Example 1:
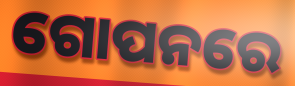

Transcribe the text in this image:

ଗୋପନରେ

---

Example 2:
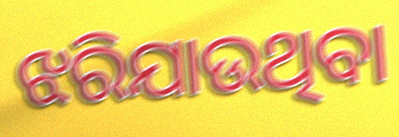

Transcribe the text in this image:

ଝରିଯାଉଥିବା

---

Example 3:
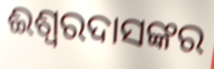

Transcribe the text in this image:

ଈଶ୍ଵରଦାସଙ୍କର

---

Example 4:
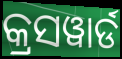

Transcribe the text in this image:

କ୍ରସୱାର୍ଡ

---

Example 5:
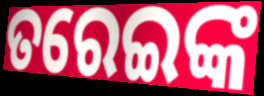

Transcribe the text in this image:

ତରେଇଙ୍କ